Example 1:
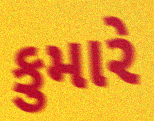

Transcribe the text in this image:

કુમારે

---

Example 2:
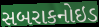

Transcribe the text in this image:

સબરાકનોઇડ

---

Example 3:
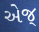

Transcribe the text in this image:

એજ્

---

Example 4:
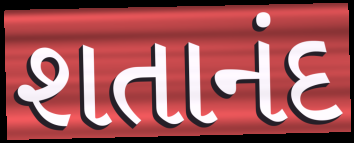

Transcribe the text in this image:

શતાનંદ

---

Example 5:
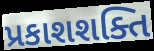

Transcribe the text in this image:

પ્રકાશશક્તિ